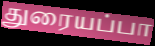
துரையப்பா